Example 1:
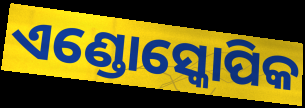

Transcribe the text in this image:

ଏଣ୍ଡୋସ୍କୋପିକ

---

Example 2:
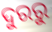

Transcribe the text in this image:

ଦୁରରୁ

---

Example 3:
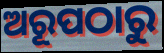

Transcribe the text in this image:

ଅରୂପଠାରୁ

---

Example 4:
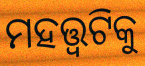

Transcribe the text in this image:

ମହତ୍ତ୍ୱଟିକୁ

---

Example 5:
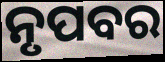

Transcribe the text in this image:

ନୃପବର